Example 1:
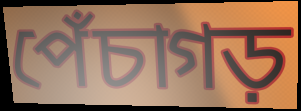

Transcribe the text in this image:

পেঁচাগড়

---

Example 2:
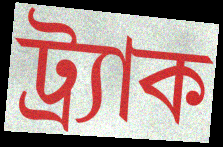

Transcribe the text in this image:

ট্র্যাক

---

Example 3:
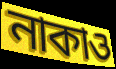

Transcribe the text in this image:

নাকাও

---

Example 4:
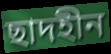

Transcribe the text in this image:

ছাদহীন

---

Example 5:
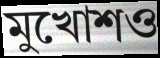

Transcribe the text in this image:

মুখোশও